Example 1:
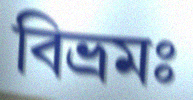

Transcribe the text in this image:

বিভ্রমঃ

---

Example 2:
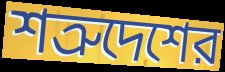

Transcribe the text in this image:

শত্রুদেশের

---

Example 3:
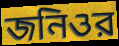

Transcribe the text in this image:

জনিওর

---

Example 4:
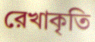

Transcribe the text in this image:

রেখাকৃতি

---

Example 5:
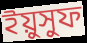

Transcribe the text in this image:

ইয়ুসুফ